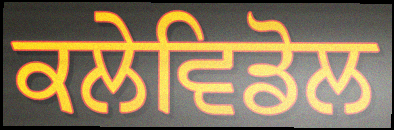
ਕਲੇਵਿਡੋਲ